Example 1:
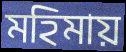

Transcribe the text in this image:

মহিমায়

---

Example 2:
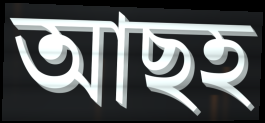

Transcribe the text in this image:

আছহ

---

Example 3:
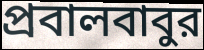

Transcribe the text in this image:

প্রবালবাবুর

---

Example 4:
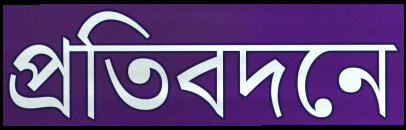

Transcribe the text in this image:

প্রতিবদনে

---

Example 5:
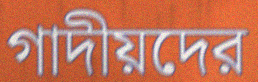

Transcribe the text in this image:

গাদীয়দের